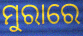
ମୁରାରେ